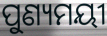
ପୁଣ୍ୟମୟୀ